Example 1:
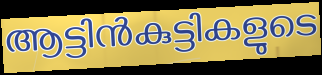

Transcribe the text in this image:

ആട്ടിൻകുട്ടികളുടെ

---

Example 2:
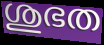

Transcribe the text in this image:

ശുഭത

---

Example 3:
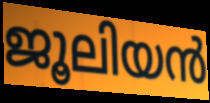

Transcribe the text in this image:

ജൂലിയൻ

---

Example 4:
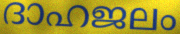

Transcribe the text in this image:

ദാഹജലം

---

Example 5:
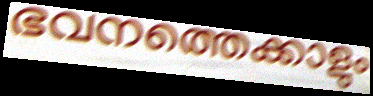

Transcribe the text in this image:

ഭവനത്തെക്കാളും